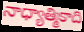
నాధ్యాత్మికాది